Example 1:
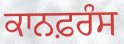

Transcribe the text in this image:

ਕਾਨਫ਼ਰੰਸ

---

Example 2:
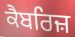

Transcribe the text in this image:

ਕੈਬਰਿਜ਼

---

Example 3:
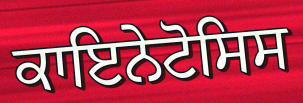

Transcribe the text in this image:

ਕਾਇਨੇਟੋਸਿਸ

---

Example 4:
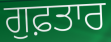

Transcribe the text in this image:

ਗੁਫ਼ਤਾਰ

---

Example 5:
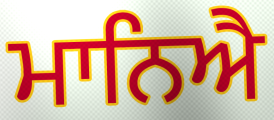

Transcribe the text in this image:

ਮਾਨਿਐ